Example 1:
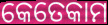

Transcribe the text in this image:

କେତେକାମ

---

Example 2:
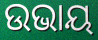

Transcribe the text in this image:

ଉଭାୟ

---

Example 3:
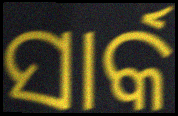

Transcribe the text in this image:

ସାର୍କ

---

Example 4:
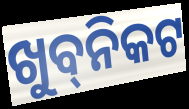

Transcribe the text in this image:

ଖୁବ୍‌ନିକଟ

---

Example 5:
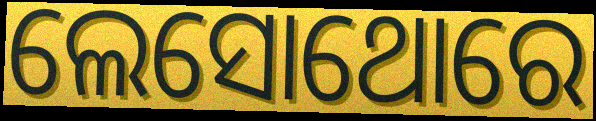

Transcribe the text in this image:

ଲେସୋଥୋରେ